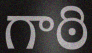
గాఠి